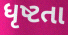
ધૃષ્ટતા